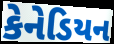
કેનેડિયન